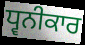
ਧ੍ਵਨੀਕਾਰ